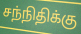
சந்நிதிக்கு